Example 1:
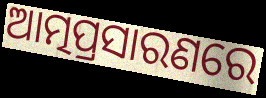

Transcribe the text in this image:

ଆତ୍ମପ୍ରସାରଣରେ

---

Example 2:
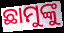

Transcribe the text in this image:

ଛାମୁଙ୍କୁ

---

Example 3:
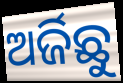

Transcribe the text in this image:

ଅର୍ଜିଛୁ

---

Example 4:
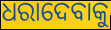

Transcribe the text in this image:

ଧରାଦେବାକୁ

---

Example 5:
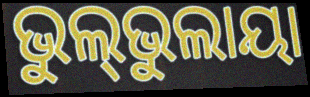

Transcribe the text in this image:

ଭୁଲ୍‌ଭୁଲାୟା